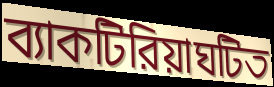
ব্যাকটিরিয়াঘটিত